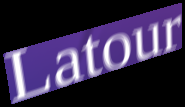
Latour